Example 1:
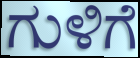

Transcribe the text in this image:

ಗುಳಿಗೆ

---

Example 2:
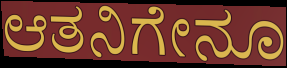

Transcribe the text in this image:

ಆತನಿಗೇನೂ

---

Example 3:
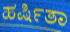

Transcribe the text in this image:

ಹರ್ಷಿತಾ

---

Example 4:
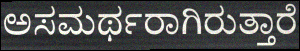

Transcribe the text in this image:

ಅಸಮರ್ಥರಾಗಿರುತ್ತಾರೆ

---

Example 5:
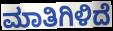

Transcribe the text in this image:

ಮಾತಿಗಿಳಿದೆ